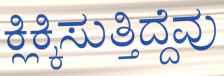
ಕ್ಲಿಕ್ಕಿಸುತ್ತಿದ್ದೆವು